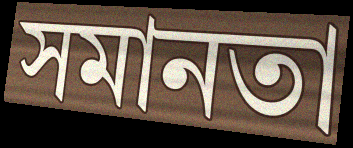
সমানতা